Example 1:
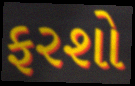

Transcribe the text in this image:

ફરશો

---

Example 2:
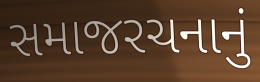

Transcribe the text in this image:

સમાજરચનાનું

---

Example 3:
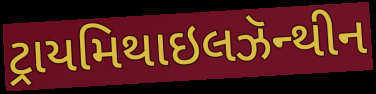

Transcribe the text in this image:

ટ્રાયમિથાઇલઝૅન્થીન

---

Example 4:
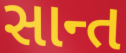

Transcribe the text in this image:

સાન્ત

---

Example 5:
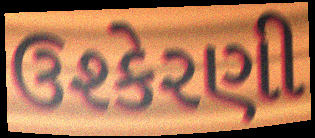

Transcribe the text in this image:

ઉશ્કેરણી